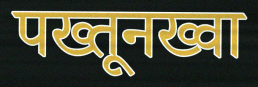
पख्तूनख्वा